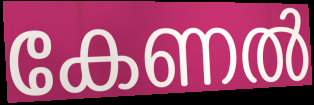
കേണൽ